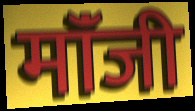
मॉंजी